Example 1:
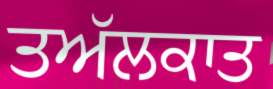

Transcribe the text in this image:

ਤਅੱਲਕਾਤ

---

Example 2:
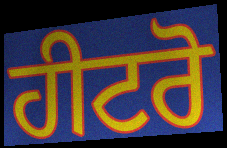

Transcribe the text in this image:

ਹੀਟਰੋ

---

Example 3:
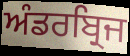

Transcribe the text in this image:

ਅੰਡਰਬ੍ਰਿਜ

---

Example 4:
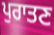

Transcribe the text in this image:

ਪੁਰਾਤਣ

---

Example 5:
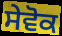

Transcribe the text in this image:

ਸੇਵੋਕ